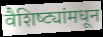
वैशिष्ट्यांमधून